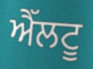
ਐੱਲਟੂ